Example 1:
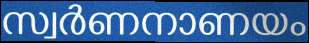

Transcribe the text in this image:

സ്വർണനാണയം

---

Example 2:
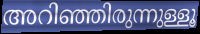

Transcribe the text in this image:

അറിഞ്ഞിരുന്നുള്ളൂ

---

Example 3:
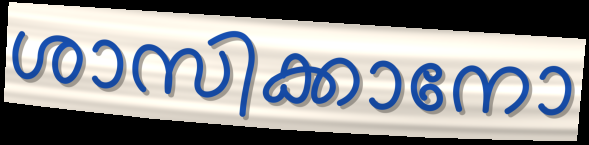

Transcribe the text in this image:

ശാസിക്കാനോ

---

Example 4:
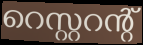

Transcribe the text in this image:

റെസ്റ്ററന്റ്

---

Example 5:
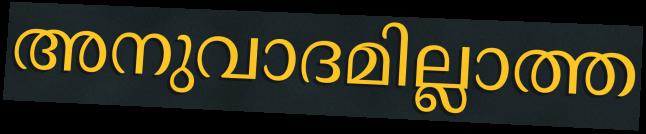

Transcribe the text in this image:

അനുവാദമില്ലാത്ത